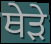
ਥੇੜੇ